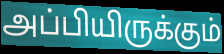
அப்பியிருக்கும்